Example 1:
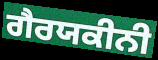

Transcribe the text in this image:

ਗੈਰਯਕੀਨੀ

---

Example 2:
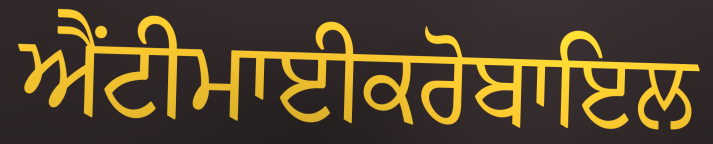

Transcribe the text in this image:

ਐਂਟੀਮਾਈਕਰੋਬਾਇਲ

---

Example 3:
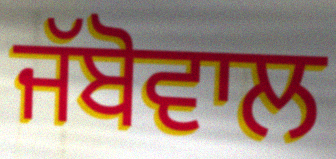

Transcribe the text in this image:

ਜੱਬੋਵਾਲ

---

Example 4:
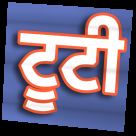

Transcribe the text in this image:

ਟੂਟੀ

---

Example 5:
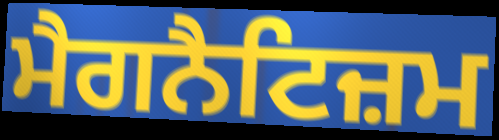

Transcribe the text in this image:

ਮੈਗਨੈਟਿਜ਼ਮ